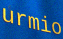
urmio